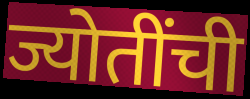
ज्योतींची